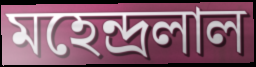
মহেন্দ্রলাল